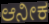
ಆನೀಕ